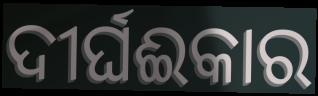
ଦୀର୍ଘଈକାର